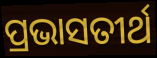
ପ୍ରଭାସତୀର୍ଥ